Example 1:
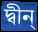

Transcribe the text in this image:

দ্বীন্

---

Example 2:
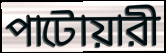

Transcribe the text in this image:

পাটোয়ারী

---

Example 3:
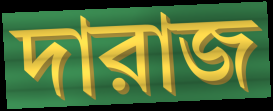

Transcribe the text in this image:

দারাজ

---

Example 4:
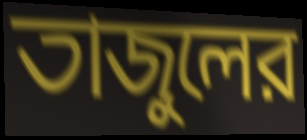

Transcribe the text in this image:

তাজুলের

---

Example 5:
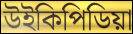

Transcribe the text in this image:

উইকিপিডিয়া